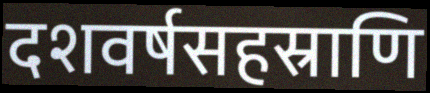
दशवर्षसहस्राणि